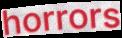
horrors